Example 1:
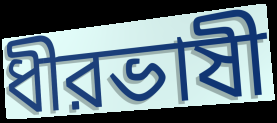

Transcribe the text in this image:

ধীরভাষী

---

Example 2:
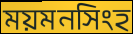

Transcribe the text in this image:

ময়মনসিংহ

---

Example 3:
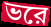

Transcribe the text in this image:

ভরে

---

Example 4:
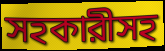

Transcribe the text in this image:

সহকারীসহ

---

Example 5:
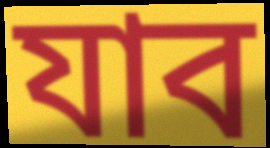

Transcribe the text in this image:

যাব